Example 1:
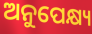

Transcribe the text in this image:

ଅନୁପେକ୍ଷ୍ୟ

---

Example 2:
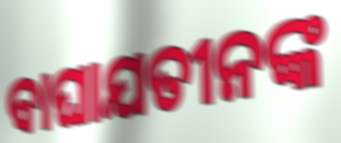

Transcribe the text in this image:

ବାଘାଯତୀନଙ୍କ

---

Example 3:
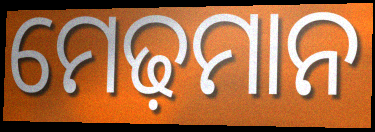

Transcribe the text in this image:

ମେଢ଼ମାନ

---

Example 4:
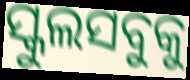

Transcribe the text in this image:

ସ୍କୁଲସବୁକୁ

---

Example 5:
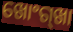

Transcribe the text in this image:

ଖୋଂଗ୍‍ଖା